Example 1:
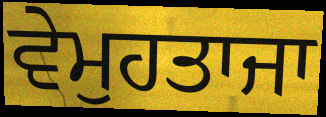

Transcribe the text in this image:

ਵੇਮੁਹਤਾਜਾ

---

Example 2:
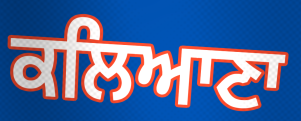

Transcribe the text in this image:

ਕਲਿਆਣਾ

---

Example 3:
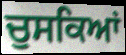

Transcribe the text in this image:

ਚੁਸਕਿਆਂ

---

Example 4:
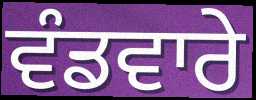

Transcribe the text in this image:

ਵੰਡਵਾਰੇ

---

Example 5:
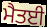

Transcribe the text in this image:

ਮੈਤਈ